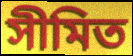
সীমিত